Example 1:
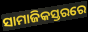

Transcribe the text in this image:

ସାମାଜିକସ୍ତରରେ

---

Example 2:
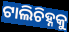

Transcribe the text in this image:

ଟାଲିଚିହ୍ନକୁ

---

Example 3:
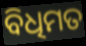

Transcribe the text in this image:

ବିଧିମତ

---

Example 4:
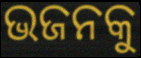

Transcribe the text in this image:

ଭଜନକୁ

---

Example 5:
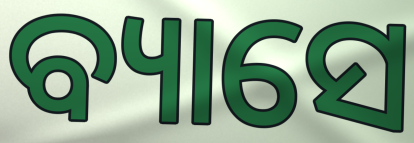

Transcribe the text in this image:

ବ୍ୟାସେ